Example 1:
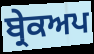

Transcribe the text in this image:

ਬ੍ਰੇਕਅਪ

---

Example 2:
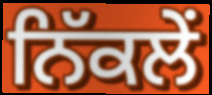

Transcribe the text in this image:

ਨਿੱਕਲੇਂ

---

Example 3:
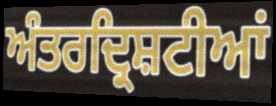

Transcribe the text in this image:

ਅੰਤਰਦ੍ਰਿਸ਼ਟੀਆਂ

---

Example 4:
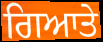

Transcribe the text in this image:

ਗਿਆਤੇ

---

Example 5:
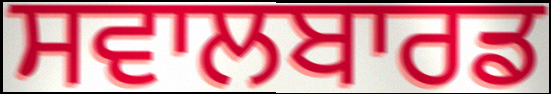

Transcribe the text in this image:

ਸਵਾਲਬਾਰਡ